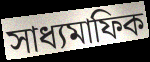
সাধ্যমাফিক